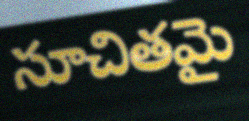
సూచితమై